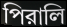
পিরালি